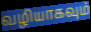
வழியாகவும்